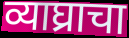
व्याघ्राचा